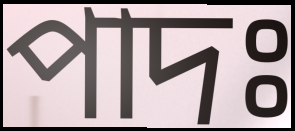
পাদঃ